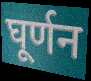
घूर्णन